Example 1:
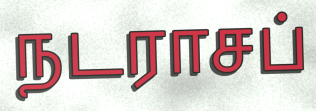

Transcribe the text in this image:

நடராசப்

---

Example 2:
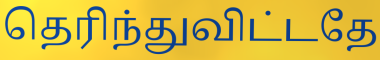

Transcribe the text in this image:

தெரிந்துவிட்டதே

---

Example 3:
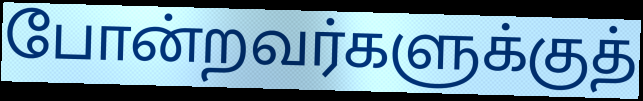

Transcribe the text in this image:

போன்றவர்களுக்குத்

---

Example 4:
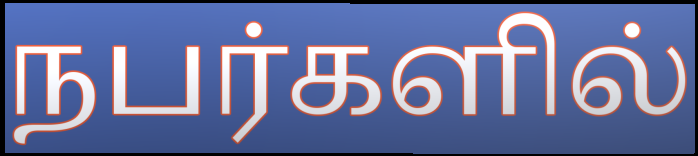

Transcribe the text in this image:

நபர்களில்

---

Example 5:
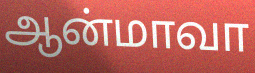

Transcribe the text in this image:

ஆன்மாவா